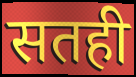
सतही